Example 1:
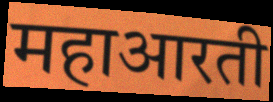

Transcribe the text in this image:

महाआरती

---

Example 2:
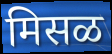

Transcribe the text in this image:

मिसळ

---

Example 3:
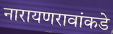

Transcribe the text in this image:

नारायणरावांकडे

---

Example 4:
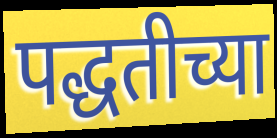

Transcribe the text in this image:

पद्धतीच्या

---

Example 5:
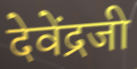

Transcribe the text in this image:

देवेंद्रजी